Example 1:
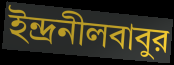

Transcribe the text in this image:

ইন্দ্রনীলবাবুর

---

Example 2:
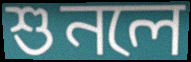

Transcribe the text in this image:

শুনলে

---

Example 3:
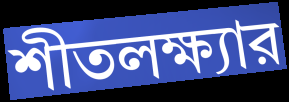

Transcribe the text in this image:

শীতলক্ষ্যার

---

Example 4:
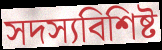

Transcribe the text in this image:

সদস্যবিশিষ্ট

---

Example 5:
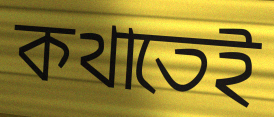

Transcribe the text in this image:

কথাতেই